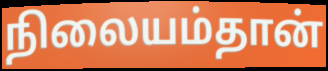
நிலையம்தான்